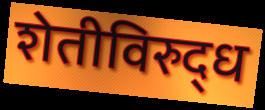
शेतीविरुद्ध